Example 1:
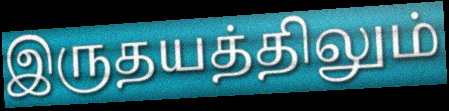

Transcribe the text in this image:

இருதயத்திலும்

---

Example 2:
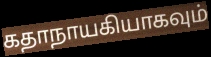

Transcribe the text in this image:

கதாநாயகியாகவும்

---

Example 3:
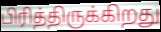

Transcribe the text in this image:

பிரித்திருக்கிறது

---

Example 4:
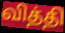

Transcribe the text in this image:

வித்தி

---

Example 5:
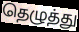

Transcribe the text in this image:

தெழுத்து